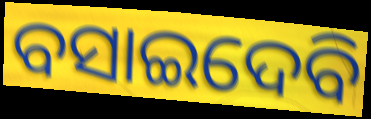
ବସାଇଦେବି